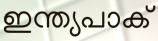
ഇന്ത്യപാക്